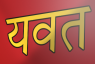
यवत